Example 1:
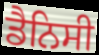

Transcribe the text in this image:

ਡੈਨਿਸੀ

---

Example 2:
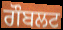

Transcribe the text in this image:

ਗੌਬਲਟ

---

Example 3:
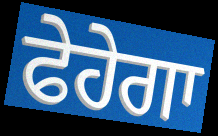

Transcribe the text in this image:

ਫੇਹੇਗਾ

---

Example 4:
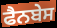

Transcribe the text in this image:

ਫੈਨਬੇਸ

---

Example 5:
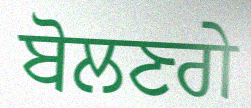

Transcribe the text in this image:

ਬੋਲਣਗੇ